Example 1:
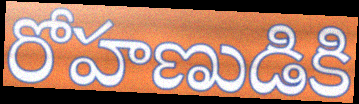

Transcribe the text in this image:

రోహణుడికి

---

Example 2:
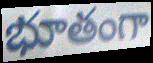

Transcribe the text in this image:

భూతంగా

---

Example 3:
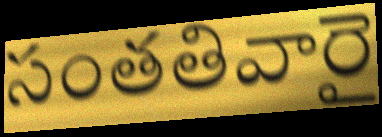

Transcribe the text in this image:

సంతతివారై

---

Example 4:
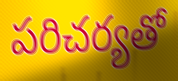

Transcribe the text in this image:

పరిచర్యతో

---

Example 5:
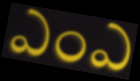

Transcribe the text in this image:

ఎంఎ